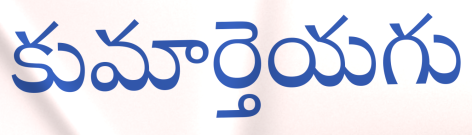
కుమార్తెయగు